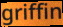
griffin